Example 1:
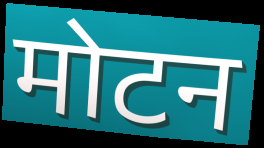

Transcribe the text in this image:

मोटन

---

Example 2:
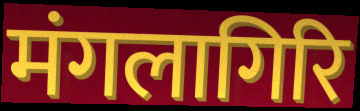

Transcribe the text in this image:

मंगलागिरि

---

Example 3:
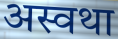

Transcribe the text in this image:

अस्वथा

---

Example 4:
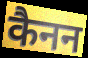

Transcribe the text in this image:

कैनन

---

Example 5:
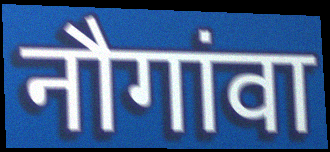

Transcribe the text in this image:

नौगांवा